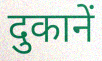
दुकानें